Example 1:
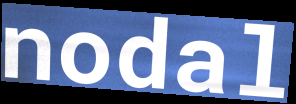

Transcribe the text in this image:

nodal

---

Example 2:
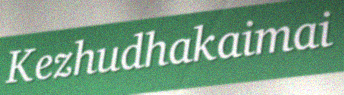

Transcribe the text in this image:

Kezhudhakaimai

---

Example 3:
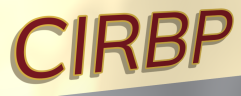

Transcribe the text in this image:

CIRBP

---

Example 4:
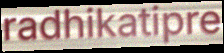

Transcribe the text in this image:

radhikatipre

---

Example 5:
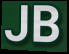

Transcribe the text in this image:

JB